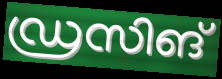
ഡ്രസിങ്